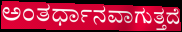
ಅಂತರ್ಧಾನವಾಗುತ್ತದೆ